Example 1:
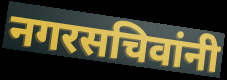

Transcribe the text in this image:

नगरसचिवांनी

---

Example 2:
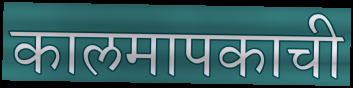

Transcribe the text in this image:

कालमापकाची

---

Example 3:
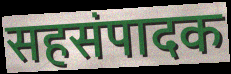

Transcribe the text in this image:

सहसंपादक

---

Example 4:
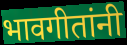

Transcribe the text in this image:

भावगीतांनी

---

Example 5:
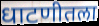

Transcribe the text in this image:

धाटणीतला